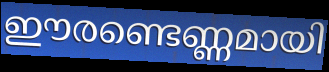
ഈരണ്ടെണ്ണമായി